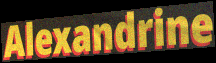
Alexandrine